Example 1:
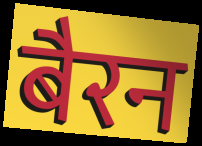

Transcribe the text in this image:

बैरन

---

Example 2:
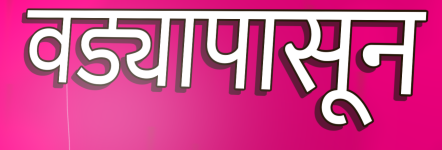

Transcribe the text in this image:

वड्यापासून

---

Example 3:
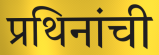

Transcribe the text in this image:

प्रथिनांची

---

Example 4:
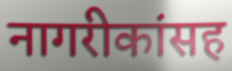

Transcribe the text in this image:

नागरीकांसह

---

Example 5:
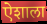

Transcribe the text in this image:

ऐशाला